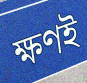
ক্ষণই